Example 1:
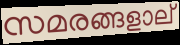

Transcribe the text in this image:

സമരങ്ങളാല്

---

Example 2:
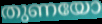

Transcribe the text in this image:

തുണയോ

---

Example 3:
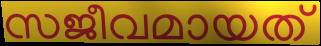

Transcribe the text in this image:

സജീവമായത്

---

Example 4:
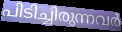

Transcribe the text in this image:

പിടിച്ചിരുന്നവർ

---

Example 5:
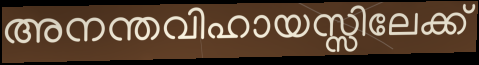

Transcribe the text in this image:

അനന്തവിഹായസ്സിലേക്ക്